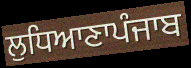
ਲੁਧਿਆਣਾਪੰਜਾਬ